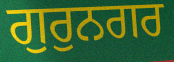
ਗੁਰੁਨਗਰ